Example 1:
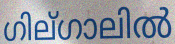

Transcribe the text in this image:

ഗില്ഗാലിൽ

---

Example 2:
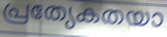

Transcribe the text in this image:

പ്രത്യേകതയാ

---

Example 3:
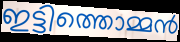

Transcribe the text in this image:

ഇട്ടിത്തൊമ്മൻ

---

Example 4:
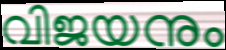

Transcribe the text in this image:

വിജയനും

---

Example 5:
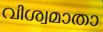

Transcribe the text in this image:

വിശ്വമാതാ